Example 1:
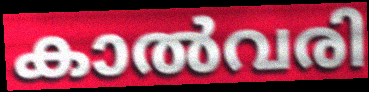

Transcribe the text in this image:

കാൽവരി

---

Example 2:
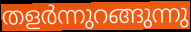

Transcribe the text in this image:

തളർന്നുറങ്ങുന്നു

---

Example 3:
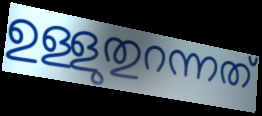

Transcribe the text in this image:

ഉള്ളുതുറന്നത്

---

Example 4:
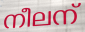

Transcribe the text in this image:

നീലന്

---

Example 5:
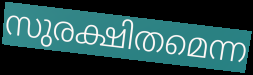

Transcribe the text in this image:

സുരക്ഷിതമെന്ന